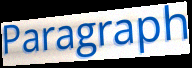
Paragraph